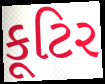
કૂટિર